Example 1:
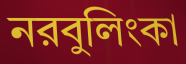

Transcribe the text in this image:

নরবুলিংকা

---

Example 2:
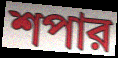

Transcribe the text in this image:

শপার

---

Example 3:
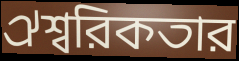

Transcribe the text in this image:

ঐশ্বরিকতার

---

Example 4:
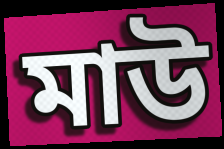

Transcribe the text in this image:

মাউ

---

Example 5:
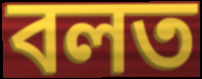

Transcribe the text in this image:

বলত